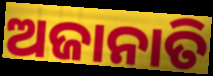
ଅଜାନାତି